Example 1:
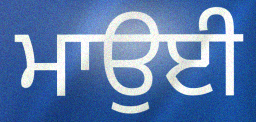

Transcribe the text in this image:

ਮਾਉਈ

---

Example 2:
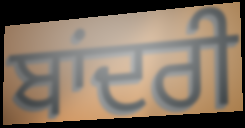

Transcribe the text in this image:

ਬਾਂਦਰੀ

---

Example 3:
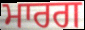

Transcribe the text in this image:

ਮਾਰਗ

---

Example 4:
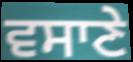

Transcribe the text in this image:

ਵਸਾਣੇ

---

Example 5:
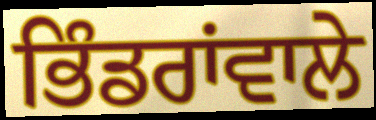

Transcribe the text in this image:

ਭਿੰਡਰਾਂਵਾਲੇ